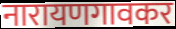
नारायणगावकर